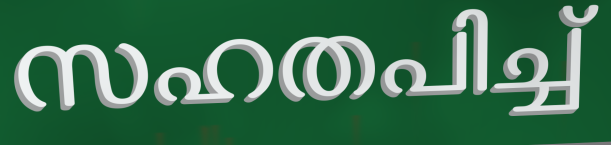
സഹതപിച്ച്